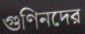
গুণিনদের